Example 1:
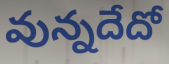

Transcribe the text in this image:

వున్నదేదో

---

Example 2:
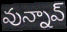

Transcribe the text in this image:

వున్నావ్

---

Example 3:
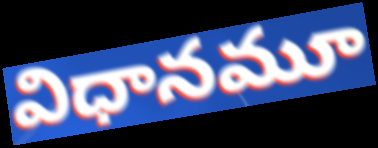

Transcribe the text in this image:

విధానమూ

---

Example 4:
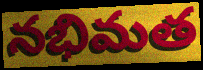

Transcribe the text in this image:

నభిమత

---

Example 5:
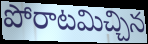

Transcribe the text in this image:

పోరాటమిచ్చిన